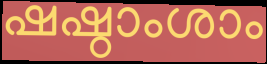
ഷഷ്ഠാംശാം